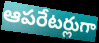
ఆపరేటర్లుగా